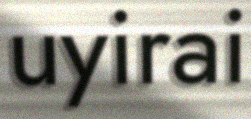
uyirai